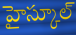
హైస్కూల్